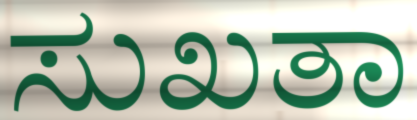
ಸುಖತಾ